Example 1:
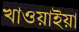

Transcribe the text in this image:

খাওয়াইয়া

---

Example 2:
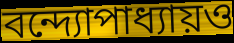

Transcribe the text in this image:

বন্দ্যোপাধ্যায়ও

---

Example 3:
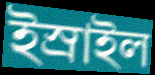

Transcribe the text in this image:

ইস্রাইল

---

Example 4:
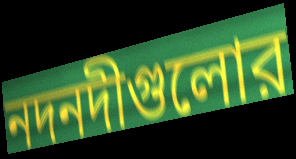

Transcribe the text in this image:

নদনদীগুলোর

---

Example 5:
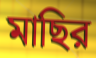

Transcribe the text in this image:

মাছির